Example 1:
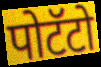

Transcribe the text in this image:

पोटॅटो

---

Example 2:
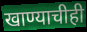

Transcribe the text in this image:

खाण्याचीही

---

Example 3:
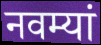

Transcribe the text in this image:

नवम्यां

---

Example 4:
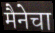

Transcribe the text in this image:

मैनेचा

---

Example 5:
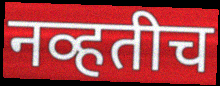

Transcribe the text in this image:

नव्हतीच